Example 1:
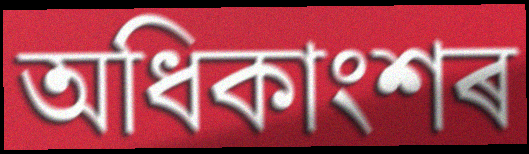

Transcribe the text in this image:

অধিকাংশৰ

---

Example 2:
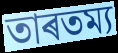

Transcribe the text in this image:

তাৰতম্য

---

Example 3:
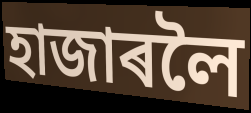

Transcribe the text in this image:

হাজাৰলৈ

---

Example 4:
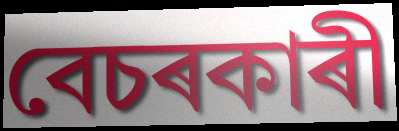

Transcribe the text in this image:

বেচৰকাৰী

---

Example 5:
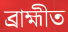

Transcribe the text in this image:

ব্ৰাহ্মীত